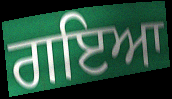
ਗਇਆ